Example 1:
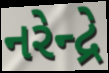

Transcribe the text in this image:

નરેન્દ્રે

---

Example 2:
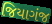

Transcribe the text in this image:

જિયાગંજ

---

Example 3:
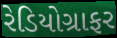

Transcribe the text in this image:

રેડિયોગ્રાફર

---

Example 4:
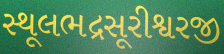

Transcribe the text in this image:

સ્થૂલભદ્રસૂરીશ્વરજી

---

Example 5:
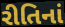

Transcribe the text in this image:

રીતિનાં